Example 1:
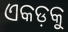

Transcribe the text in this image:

ଏକଡ଼କୁ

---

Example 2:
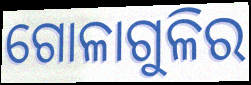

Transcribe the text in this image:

ଗୋଳାଗୁଳିର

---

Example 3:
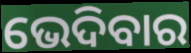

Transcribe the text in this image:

ଭେଦିବାର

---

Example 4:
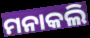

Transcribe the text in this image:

ମନାକଲି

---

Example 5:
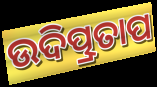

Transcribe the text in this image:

ଉଦିତ୍ପ୍ରତାପ